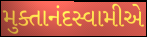
મુક્તાનંદસ્વામીએ